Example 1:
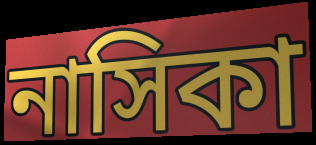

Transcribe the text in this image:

নাসিকা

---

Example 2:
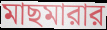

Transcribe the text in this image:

মাছমারার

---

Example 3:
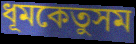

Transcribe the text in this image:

ধূমকেতুসম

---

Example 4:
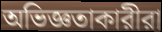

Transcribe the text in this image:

অভিজ্ঞতাকারীরা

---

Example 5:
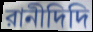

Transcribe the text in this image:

রানীদিদি